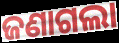
ଜଣାଗଲା